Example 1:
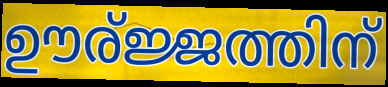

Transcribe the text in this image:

ഊര്ജ്ജത്തിന്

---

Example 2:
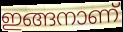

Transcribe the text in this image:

ഇങ്ങനാണ്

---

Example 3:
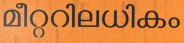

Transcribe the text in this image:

മീറ്ററിലധികം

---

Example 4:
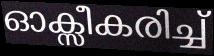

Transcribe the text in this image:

ഓക്സീകരിച്ച്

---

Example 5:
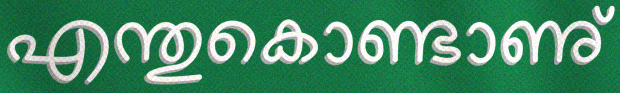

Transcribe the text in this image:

എന്തുകൊണ്ടാണു്